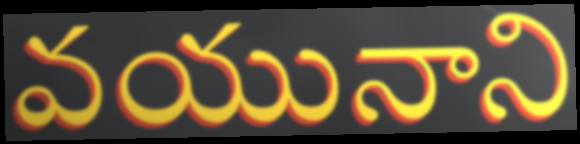
వయునాని